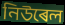
নিউৰেল